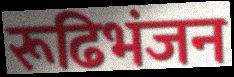
रूढिभंजन